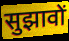
सुझावों